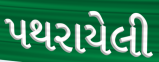
પથરાયેલી